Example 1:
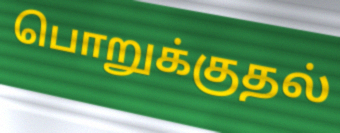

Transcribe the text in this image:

பொறுக்குதல்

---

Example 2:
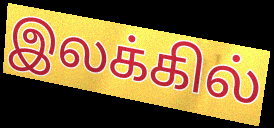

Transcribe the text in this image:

இலக்கில்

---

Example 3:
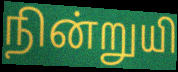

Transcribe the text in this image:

நின்றுயி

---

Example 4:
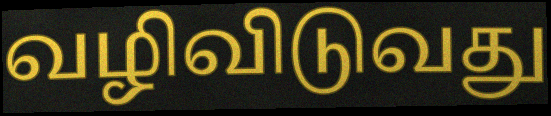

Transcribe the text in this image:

வழிவிடுவது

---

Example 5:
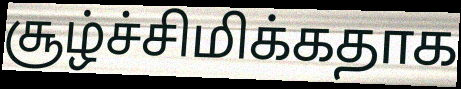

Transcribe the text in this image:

சூழ்ச்சிமிக்கதாக